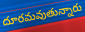
దూరమవుతున్నారు